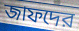
জাফদের